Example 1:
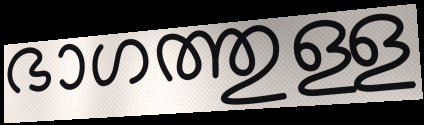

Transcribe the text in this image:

ഭാഗത്തുള്ള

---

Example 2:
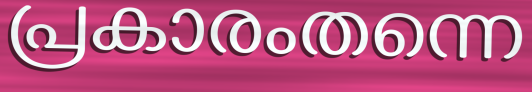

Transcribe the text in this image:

പ്രകാരംതന്നെ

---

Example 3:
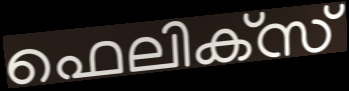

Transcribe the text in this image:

ഫെലിക്‌സ്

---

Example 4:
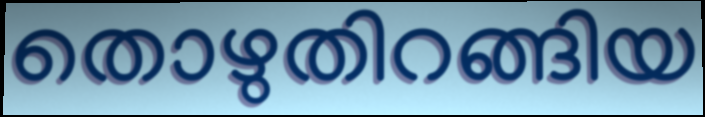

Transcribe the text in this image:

തൊഴുതിറങ്ങിയ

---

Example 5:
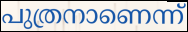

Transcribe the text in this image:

പുത്രനാണെന്ന്